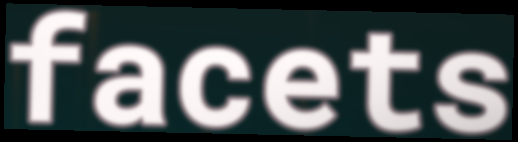
facets